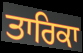
ਤਾਰਿਕਾ